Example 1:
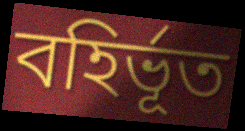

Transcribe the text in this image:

বহিৰ্ভূত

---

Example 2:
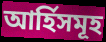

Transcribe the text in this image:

আৰ্হিসমূহ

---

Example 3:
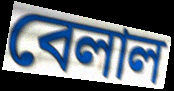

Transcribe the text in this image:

বেলাল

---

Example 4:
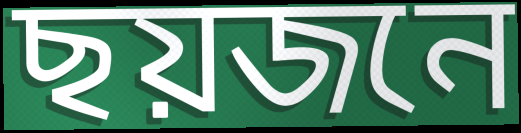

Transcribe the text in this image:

ছয়জনে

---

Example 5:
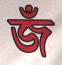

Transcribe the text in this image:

জঁ